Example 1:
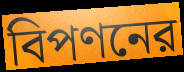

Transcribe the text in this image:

বিপণনের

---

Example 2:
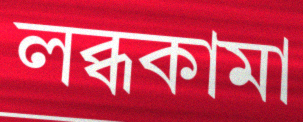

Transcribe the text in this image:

লব্ধকামা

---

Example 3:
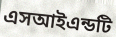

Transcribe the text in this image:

এসআইএন্ডটি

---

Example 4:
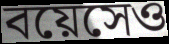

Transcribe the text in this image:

বয়েসেও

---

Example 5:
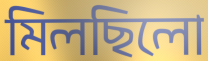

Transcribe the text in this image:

মিলছিলো